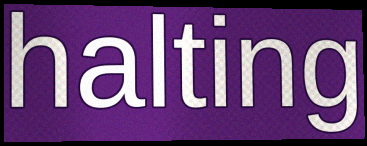
halting